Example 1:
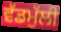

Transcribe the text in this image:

ਵੱਡਮੁੱਲੀ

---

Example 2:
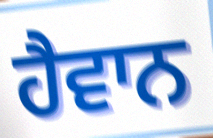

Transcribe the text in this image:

ਹੈਵਾਨ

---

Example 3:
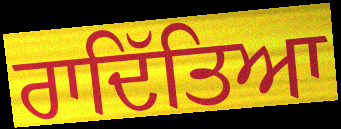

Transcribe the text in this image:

ਰਾਦਿੱਤਿਆ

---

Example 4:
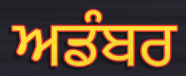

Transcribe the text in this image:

ਅਡੰਬਰ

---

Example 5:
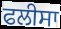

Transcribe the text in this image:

ਫਲੀਸਾ